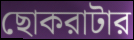
ছোকরাটার